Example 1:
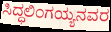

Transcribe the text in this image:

ಸಿದ್ಧಲಿಂಗಯ್ಯನವರ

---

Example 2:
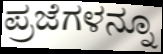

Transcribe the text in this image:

ಪ್ರಜೆಗಳನ್ನೂ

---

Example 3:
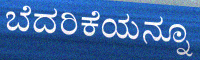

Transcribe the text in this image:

ಬೆದರಿಕೆಯನ್ನೂ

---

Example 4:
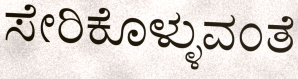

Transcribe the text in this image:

ಸೇರಿಕೊಳ್ಳುವಂತೆ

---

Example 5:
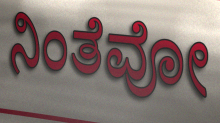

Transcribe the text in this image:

ನಿಂತೆವೋ